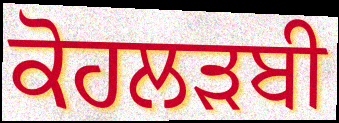
ਕੋਹਲੜਬੀ